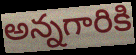
అన్నగారికి